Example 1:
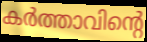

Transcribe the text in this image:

കർത്താവിന്റെ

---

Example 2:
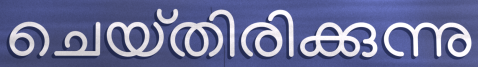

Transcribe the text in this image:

ചെയ്‌തിരിക്കുന്നു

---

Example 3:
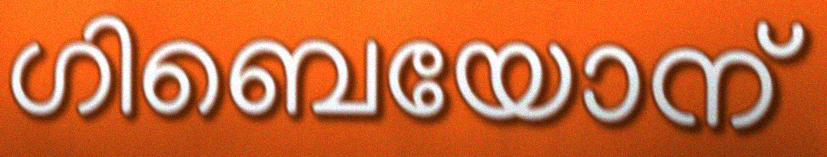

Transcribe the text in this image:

ഗിബെയോന്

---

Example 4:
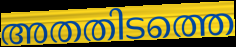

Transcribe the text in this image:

അതതിടത്തെ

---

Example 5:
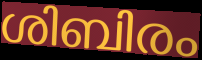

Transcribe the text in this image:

ശിബിരം